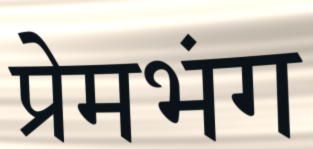
प्रेमभंग